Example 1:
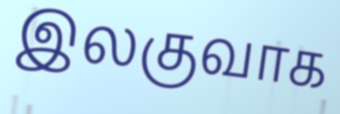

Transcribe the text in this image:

இலகுவாக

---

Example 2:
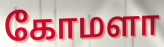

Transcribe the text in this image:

கோமளா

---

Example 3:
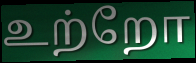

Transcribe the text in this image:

உற்றோ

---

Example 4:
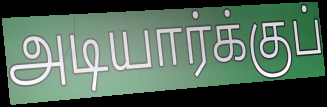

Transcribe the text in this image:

அடியார்க்குப்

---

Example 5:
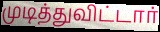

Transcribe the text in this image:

முடித்துவிட்டார்